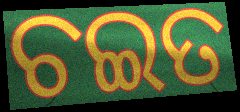
ଚଇତ